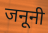
जनूनी